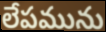
లేపమును